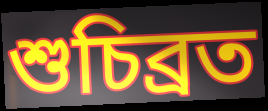
শুচিব্রত